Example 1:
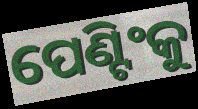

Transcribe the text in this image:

ପେଣ୍ଟିଂକୁ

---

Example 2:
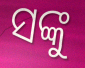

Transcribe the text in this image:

ସଙ୍କୁ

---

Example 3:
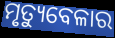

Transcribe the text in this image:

ମୃତ୍ୟୁବେଳାର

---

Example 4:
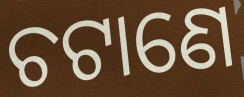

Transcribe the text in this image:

ଚଟାଣେ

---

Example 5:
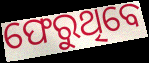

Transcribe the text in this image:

ଫେରୁଥିବେ